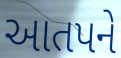
આતપને